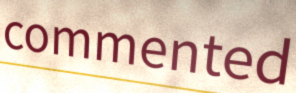
commented